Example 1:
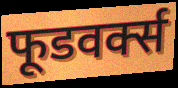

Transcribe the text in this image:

फूडवर्क्स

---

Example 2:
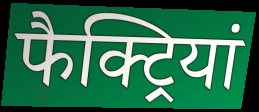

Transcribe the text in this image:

फैक्ट्रियां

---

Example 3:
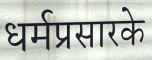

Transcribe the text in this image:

धर्मप्रसारके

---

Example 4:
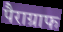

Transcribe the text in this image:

पैराग्राफ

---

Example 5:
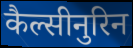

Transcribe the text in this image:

कैल्सीनुरिन